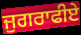
ਜੁਗਰਾਫੀਏ